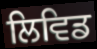
ਲਿਵਿਡ